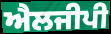
ਐਲਜੀਪੀ